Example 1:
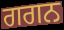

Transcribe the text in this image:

ਗਗਨ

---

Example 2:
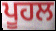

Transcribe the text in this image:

ਪੂਹਲ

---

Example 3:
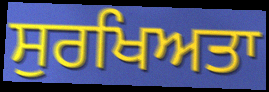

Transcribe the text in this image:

ਸੁਰਖਿਅਤਾ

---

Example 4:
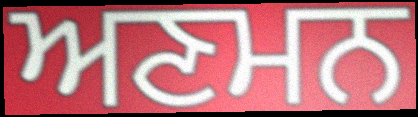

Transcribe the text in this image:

ਅਣਮਨ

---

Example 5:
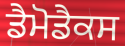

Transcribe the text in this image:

ਡੈਮੋਡੈਕਸ